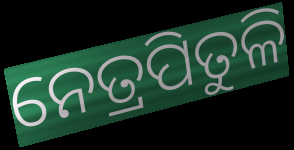
ନେତ୍ରପିତୁଳି